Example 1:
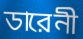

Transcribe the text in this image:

ডারেনী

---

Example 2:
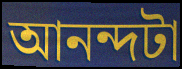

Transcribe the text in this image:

আনন্দটা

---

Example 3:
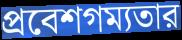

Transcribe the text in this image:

প্রবেশগম্যতার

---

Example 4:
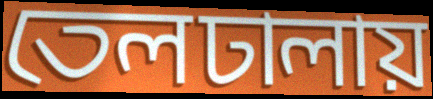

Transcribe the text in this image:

তেলঢালায়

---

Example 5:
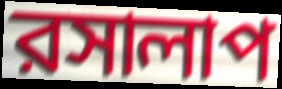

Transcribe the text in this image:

রসালাপ